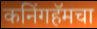
कनिंगहॅमचा